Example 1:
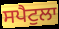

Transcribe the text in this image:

ਸਪੈਟੁਲਾ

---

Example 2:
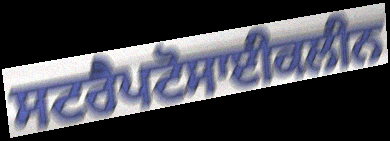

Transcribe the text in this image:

ਸਟਰੈਪਟੋਸਾਈਕਲੀਨ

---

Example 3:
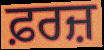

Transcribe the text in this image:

ਫ਼ਰਜ਼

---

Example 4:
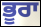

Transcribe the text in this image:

ਭੂਰਾ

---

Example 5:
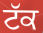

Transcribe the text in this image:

ਟੱਕ